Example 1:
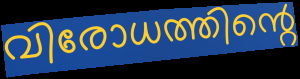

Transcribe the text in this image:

വിരോധത്തിന്റെ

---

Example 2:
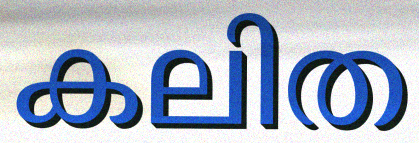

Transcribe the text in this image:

കലിത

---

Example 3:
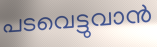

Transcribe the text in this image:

പടവെട്ടുവാൻ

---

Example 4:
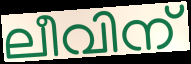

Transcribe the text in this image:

ലീവിന്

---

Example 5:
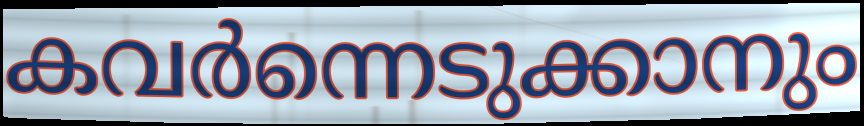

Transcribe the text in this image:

കവർന്നെടുക്കാനും